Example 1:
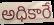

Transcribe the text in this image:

అధికారే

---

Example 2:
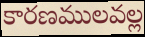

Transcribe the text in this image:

కారణములవల్ల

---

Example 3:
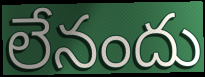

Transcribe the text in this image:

లేనందు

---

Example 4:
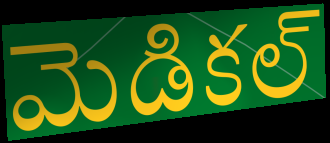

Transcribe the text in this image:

మెడికల్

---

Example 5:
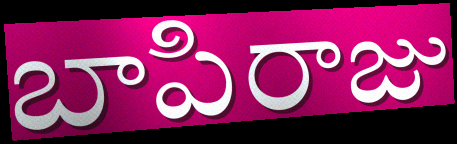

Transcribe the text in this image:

బాపిరాజు